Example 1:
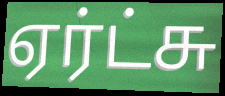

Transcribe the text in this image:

ஏர்ட்சு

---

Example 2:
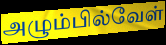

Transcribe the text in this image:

அழும்பில்வேள்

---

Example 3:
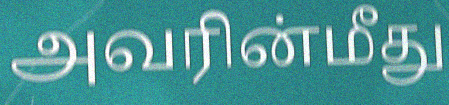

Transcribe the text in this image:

அவரின்மீது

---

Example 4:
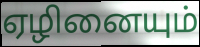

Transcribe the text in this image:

ஏழினையும்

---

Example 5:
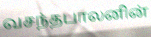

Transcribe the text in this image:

வசந்தபாலனின்